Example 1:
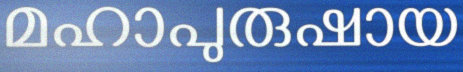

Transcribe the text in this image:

മഹാപുരുഷായ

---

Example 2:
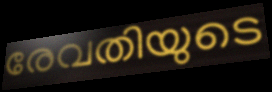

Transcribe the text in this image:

രേവതിയുടെ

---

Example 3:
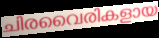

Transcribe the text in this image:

ചിരവൈരികളായ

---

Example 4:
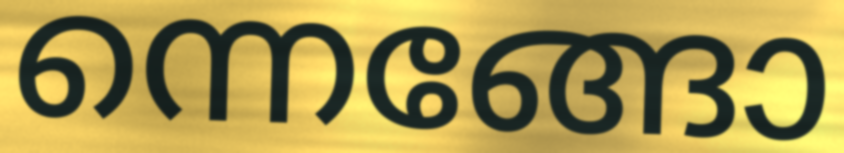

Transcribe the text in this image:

ന്നെങ്ങോ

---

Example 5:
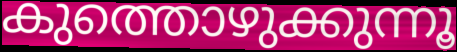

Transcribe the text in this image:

കുത്തൊഴുക്കുന്നൂ